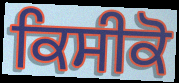
ਕਿਸੀਕੋ